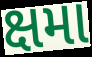
ક્ષમા